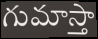
గుమాస్తా